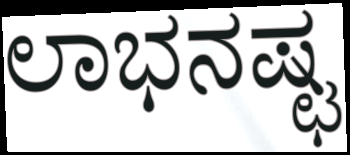
ಲಾಭನಷ್ಟ